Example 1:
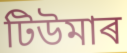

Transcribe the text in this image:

টিউমাৰ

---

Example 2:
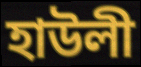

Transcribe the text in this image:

হাউলী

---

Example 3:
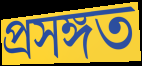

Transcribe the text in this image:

প্ৰসঙ্গত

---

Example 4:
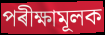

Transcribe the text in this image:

পৰীক্ষামূলক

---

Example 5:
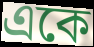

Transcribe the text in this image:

একে